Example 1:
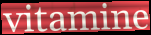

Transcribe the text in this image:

vitamine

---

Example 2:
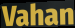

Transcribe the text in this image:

Vahan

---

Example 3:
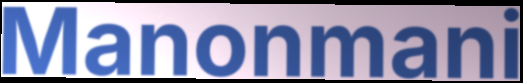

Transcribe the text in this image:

Manonmani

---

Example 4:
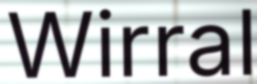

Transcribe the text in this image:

Wirral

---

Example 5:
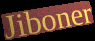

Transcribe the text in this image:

Jiboner